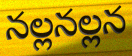
నల్లనల్లన